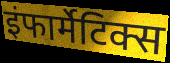
इंफार्मेटिक्स